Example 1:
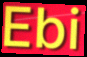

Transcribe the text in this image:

Ebi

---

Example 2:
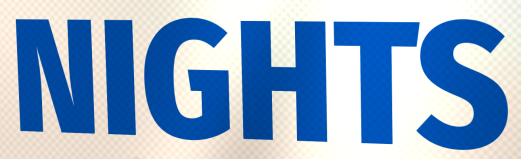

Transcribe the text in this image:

NIGHTS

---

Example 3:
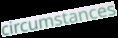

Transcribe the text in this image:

circumstances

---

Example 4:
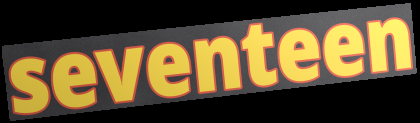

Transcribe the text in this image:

seventeen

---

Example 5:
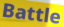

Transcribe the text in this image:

Battle